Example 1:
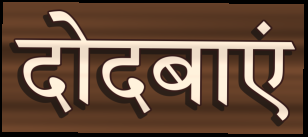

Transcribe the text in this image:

दोदबाएं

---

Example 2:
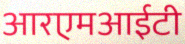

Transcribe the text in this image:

आरएमआईटी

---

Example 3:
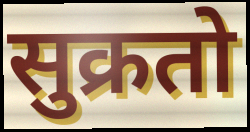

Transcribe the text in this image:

सुक्रतो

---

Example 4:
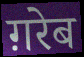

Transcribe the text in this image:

ग़रेब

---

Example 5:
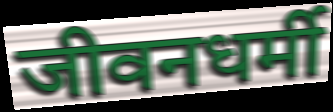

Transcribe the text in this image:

जीवनधर्मी